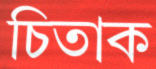
চিতাক